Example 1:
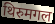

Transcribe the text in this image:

थिरुमगल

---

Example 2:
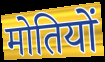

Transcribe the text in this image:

मोतियों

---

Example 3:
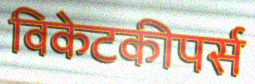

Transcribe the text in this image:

विकेटकीपर्स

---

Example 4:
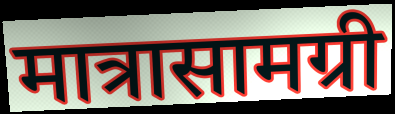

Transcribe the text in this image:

मात्रासामग्री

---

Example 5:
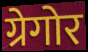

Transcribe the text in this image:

ग्रेगोर